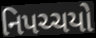
નિપચ્ચયો